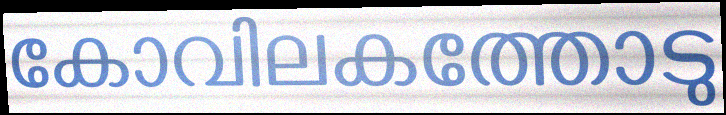
കോവിലകത്തോടു